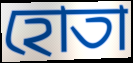
হোতা